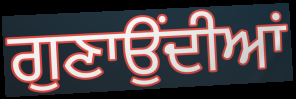
ਗੁਣਾਉਂਦੀਆਂ